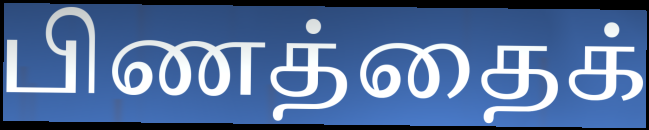
பிணத்தைக்